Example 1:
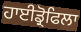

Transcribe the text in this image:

ਹਾਈਡ੍ਰੋਫਿਲਾ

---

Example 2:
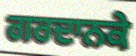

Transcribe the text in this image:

ਗਰਦਾਨਕੇ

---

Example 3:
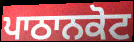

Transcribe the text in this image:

ਪਾਠਾਨਕੋਟ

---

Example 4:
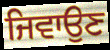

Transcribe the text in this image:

ਜਿਵਾਉਣ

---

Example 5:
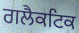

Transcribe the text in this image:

ਗਲੈਕਟਿਕ